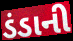
ડંડાની